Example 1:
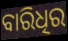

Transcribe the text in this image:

ବାରିଧିର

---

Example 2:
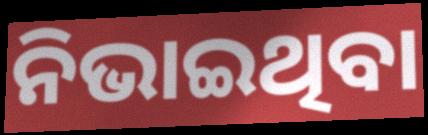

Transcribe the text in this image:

ନିଭାଇଥିବା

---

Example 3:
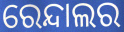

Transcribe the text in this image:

ରେନ୍ଦାଲର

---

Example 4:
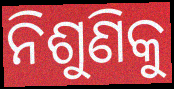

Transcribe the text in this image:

ନିଶୁଣିକୁ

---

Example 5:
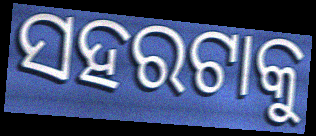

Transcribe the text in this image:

ସହରଟାକୁ